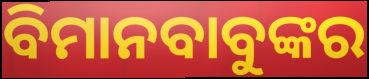
ବିମାନବାବୁଙ୍କର